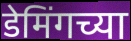
डेमिंगच्या